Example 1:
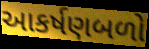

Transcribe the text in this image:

આકર્ષણબળો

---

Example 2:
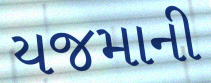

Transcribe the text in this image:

યજમાની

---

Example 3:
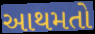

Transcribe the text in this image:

આથમતો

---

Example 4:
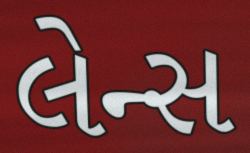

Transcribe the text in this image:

લેન્સ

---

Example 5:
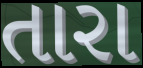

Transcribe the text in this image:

તારા